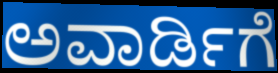
ಅವಾರ್ಡಿಗೆ